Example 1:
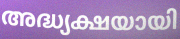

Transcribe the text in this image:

അദ്ധ്യക്ഷയായി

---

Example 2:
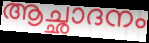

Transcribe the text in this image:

ആച്ഛാദനം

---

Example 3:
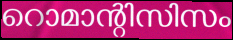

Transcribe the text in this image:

റൊമാന്റിസിസം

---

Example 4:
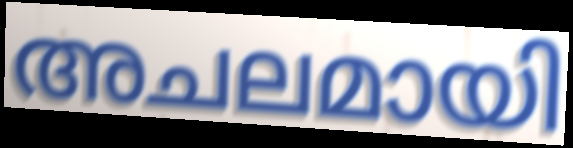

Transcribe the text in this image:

അചലമായി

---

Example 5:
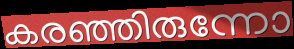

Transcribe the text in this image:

കരഞ്ഞിരുന്നോ